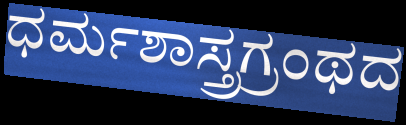
ಧರ್ಮಶಾಸ್ತ್ರಗ್ರಂಥದ